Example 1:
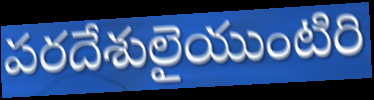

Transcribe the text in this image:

పరదేశులైయుంటిరి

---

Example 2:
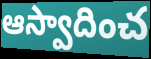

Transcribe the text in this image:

ఆస్వాదించ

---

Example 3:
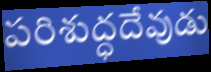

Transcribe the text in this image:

పరిశుద్ధదేవుడు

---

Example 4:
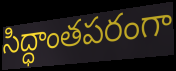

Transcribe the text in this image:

సిద్ధాంతపరంగా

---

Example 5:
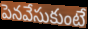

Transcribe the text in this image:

పెనవేసుకుంటే